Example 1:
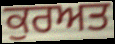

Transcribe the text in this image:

ਕੁਰਅਤ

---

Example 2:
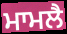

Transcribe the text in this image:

ਮਾਮਲੈ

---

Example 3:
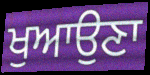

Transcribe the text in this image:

ਖੁਆਉਣਾ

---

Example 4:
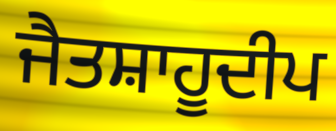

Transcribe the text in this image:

ਜੈਤਸ਼ਾਹੂਦੀਪ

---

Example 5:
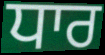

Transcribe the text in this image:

ਧਾਰ